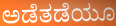
ಅಡೆತಡೆಯೂ